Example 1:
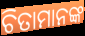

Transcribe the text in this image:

ଚିତାମାନଙ୍କ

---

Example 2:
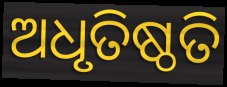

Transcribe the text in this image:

ଅଧୃତିଷ୍ଠତି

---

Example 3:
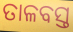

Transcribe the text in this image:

ତାଳବସ୍ତ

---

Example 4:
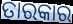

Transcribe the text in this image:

ତାରକାର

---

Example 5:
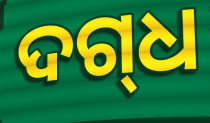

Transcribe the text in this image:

ଦଗ୍‌ଧ